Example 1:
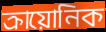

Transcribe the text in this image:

ক্রায়োনিক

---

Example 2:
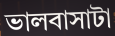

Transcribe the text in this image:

ভালবাসাটা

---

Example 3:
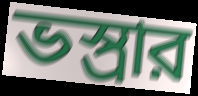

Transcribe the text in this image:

ভস্ত্রার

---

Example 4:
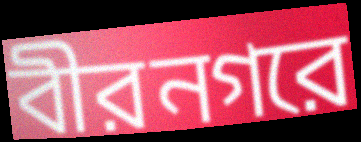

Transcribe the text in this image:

বীরনগরে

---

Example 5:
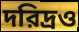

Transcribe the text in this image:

দরিদ্রও